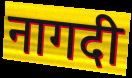
नागदी